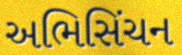
અભિસિંચન